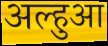
अल्हुआ